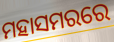
ମହାସମରରେ